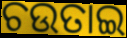
ଚଉତାଇ